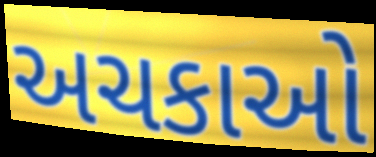
અચકાઓ